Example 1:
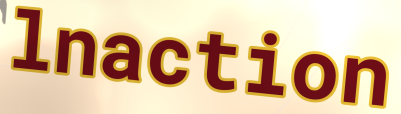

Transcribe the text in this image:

lnaction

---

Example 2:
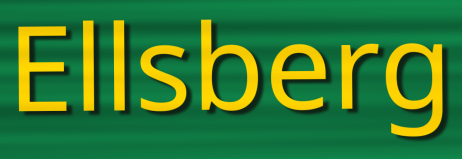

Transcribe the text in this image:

Ellsberg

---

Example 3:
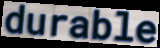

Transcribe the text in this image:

durable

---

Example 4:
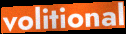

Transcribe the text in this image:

volitional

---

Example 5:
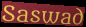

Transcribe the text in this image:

Saswad